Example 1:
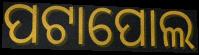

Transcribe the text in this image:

ପଟାପୋଲ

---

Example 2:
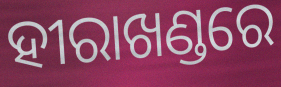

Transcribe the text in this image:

ହୀରାଖଣ୍ଡରେ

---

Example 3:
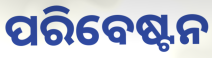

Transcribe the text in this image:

ପରିବେଷ୍ଟନ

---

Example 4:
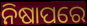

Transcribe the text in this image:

ନିଷାପରେ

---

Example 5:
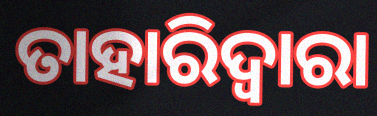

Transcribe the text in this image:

ତାହାରିଦ୍ଵାରା